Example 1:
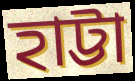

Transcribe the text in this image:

হাট্টা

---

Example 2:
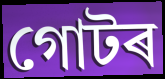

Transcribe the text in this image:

গোটৰ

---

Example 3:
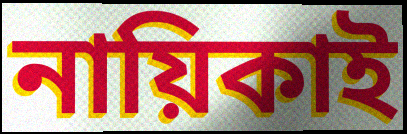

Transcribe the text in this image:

নায়িকাই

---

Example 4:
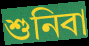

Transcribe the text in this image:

শুনিবা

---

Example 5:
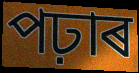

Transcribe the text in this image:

পঢ়াৰ